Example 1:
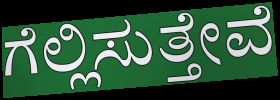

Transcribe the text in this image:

ಗೆಲ್ಲಿಸುತ್ತೇವೆ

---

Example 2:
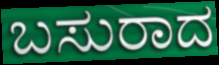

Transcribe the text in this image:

ಬಸುರಾದ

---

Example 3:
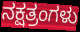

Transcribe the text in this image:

ನಕ್ಷತ್ರಂಗಳು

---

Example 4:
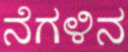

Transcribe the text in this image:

ನೆಗಳಿನ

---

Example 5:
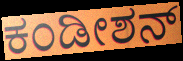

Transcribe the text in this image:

ಕಂಡೀಶನ್